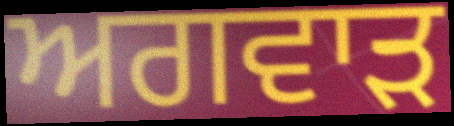
ਅਗਵਾੜ